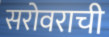
सरोवराची